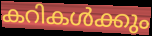
കറികൾക്കും